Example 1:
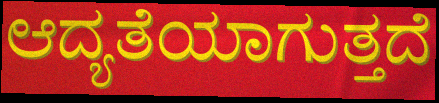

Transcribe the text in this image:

ಆದ್ಯತೆಯಾಗುತ್ತದೆ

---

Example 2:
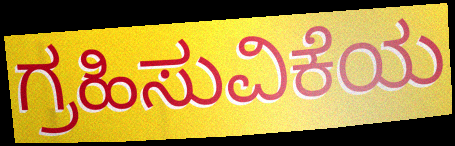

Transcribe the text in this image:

ಗ್ರಹಿಸುವಿಕೆಯ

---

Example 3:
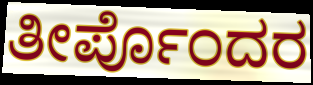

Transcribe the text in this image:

ತೀರ್ಪೊಂದರ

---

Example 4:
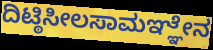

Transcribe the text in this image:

ದಿಟ್ಠಿಸೀಲಸಾಮಞ್ಞೇನ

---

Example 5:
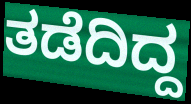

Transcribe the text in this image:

ತಡೆದಿದ್ದ